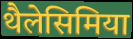
थैलेसिमिया